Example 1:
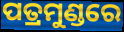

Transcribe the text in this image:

ପତ୍ରମୁଣ୍ଡରେ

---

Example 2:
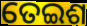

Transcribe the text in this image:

ତେଇଶ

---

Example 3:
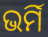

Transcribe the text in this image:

ଭର୍ମି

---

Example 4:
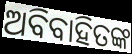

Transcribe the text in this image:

ଅବିବାହିତଙ୍କ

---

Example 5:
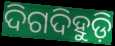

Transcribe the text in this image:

ଦିଗଦିହୁଡ଼ି